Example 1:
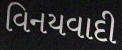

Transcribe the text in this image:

વિનયવાદી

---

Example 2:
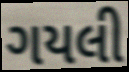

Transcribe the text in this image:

ગયલી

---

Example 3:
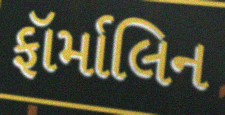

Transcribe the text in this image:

ફૉર્માલિન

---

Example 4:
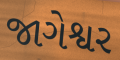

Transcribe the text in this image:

જાગેશ્વર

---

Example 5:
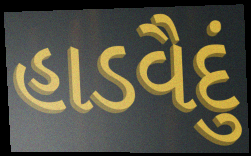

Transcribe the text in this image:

હાડવૈદું